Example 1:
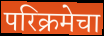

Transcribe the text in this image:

परिक्रमेचा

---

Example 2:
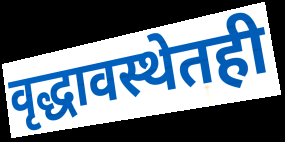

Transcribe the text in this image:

वृद्धावस्थेतही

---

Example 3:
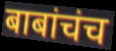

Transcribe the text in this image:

बाबांचंच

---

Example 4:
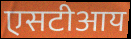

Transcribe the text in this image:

एसटीआय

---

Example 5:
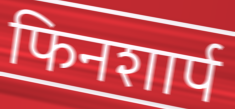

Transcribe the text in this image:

फिनशार्प